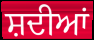
ਸ਼ਦੀਆਂ